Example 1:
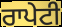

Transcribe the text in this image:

ਰਾਪੇਟੀ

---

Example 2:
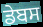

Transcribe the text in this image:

ਡੇਬਸ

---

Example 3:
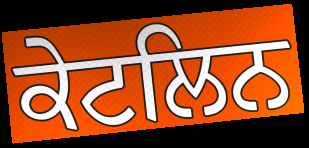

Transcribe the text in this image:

ਕੇਟਲਿਨ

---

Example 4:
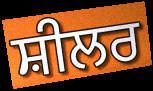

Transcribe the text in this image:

ਸ਼ੀਲਰ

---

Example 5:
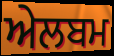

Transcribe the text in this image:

ਅੇਲਬਮ